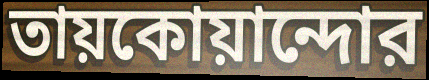
তায়কোয়ান্দোর